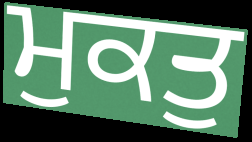
ਮੁਕਤੁ